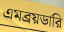
এমব্রয়ডারি